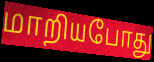
மாறியபோது